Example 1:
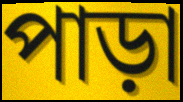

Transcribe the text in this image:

পাড়া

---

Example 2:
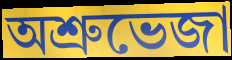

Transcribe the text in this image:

অশ্রুভেজা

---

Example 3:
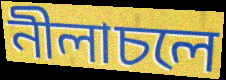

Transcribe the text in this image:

নীলাচলে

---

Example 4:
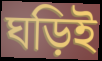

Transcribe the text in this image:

ঘড়িই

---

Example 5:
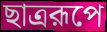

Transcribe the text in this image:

ছাত্ররূপে